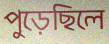
পুড়েছিলে